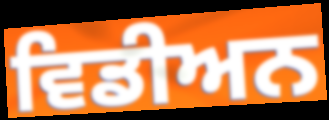
ਵਿਡੀਅਨ